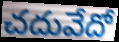
చదువేదో